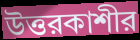
উত্তরকাশীর